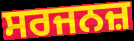
ਸਰਜਨਜ਼